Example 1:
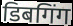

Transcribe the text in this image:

डिबगिंग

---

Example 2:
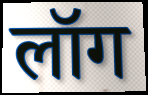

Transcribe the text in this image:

लॉग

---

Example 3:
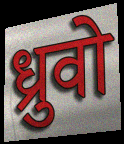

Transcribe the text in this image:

ध्रुवो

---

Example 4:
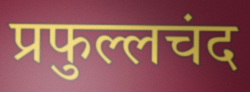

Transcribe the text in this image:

प्रफुल्लचंद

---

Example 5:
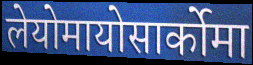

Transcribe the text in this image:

लेयोमायोसार्कोमा